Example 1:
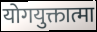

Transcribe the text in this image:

योगयुक्तात्मा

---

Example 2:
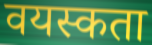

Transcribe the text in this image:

वयस्कता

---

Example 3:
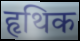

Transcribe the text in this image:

हृथिक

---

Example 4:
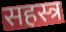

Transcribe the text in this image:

सहस्‍त्र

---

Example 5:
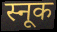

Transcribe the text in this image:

स्नूक